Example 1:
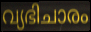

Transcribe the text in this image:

വ്യഭിചാരം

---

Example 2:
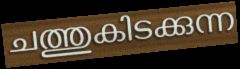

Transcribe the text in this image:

ചത്തുകിടക്കുന്ന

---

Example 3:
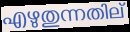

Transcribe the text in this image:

എഴുതുന്നതില്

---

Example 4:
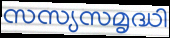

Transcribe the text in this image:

സസ്യസമൃദ്ധി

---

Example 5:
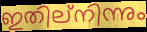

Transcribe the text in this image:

ഇതില്നിന്നും